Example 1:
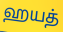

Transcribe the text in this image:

ஹயத்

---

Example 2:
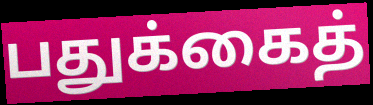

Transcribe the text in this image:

பதுக்கைத்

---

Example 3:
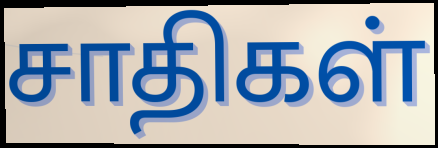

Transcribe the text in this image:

சாதிகள்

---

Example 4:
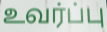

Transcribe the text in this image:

உவர்ப்பு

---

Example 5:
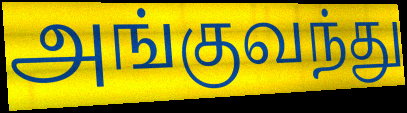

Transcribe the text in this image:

அங்குவந்து